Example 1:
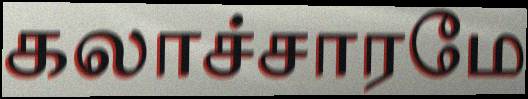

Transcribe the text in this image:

கலாச்சாரமே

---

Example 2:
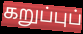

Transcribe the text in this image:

கறுப்புப்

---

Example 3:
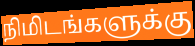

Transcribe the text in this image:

நிமிடங்களுக்கு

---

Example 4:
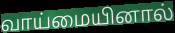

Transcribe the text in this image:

வாய்மையினால்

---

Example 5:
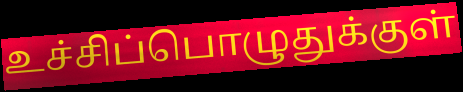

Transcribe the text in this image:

உச்சிப்பொழுதுக்குள்